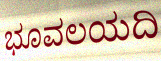
ಭೂವಲಯದಿ